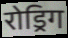
रोड्रिग